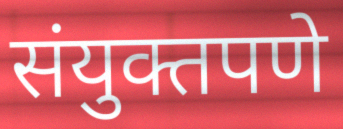
संयुक्तपणे